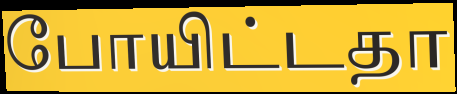
போயிட்டதா